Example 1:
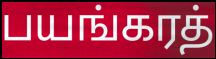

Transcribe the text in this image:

பயங்கரத்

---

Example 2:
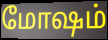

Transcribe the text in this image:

மோஷம்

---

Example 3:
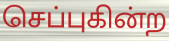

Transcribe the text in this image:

செப்புகின்ற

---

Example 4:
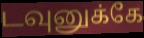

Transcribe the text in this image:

டவுனுக்கே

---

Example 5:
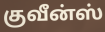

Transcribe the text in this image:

குவீன்ஸ்